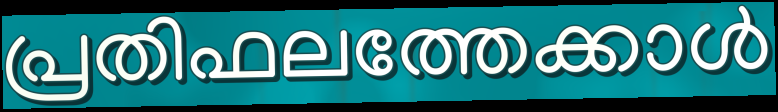
പ്രതിഫലത്തേക്കാൾ